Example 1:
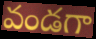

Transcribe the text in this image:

వండగా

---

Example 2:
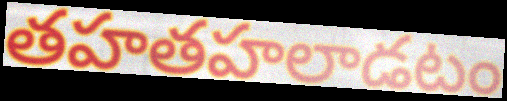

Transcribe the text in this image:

తహతహలాడటం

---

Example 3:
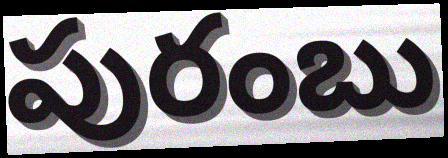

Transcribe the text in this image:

పురంబు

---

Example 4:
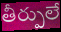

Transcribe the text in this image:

తీర్పులే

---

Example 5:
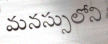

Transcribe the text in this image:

మనస్సులోని